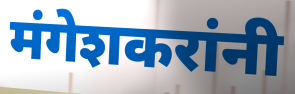
मंगेशकरांनी